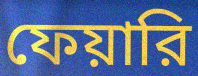
ফেয়ারি